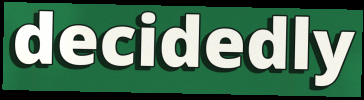
decidedly